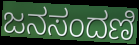
ಜನಸಂದಣಿ